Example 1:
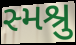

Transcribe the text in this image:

સ્મશ્રુ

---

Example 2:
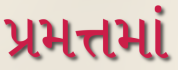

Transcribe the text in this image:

પ્રમત્તમાં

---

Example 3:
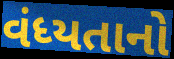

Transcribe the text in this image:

વંધ્યતાનો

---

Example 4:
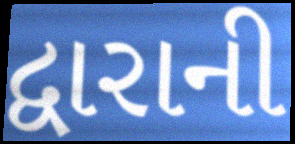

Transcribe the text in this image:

દ્વારાની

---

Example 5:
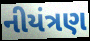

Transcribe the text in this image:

નીયંત્રણ